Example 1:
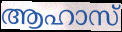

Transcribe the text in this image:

ആഹാസ്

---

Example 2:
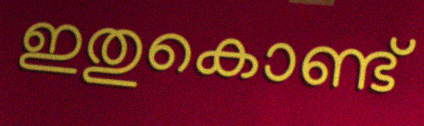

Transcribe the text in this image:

ഇതുകൊണ്ട്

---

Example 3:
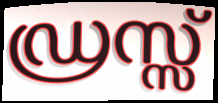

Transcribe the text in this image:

ഡ്രസ്സ്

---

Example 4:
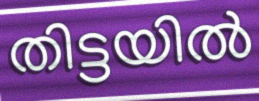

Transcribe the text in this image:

തിട്ടയിൽ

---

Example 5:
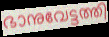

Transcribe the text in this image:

ഭാനുവേട്ടത്തി